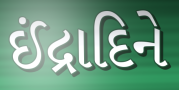
ઈંદ્રાદિને